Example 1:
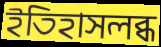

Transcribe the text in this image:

ইতিহাসলব্ধ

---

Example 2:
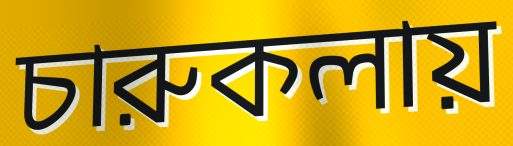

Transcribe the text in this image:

চারুকলায়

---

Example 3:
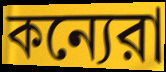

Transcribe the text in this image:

কন্যেরা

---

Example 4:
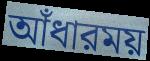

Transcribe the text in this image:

আঁধারময়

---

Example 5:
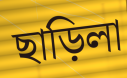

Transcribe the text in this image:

ছাড়িলা